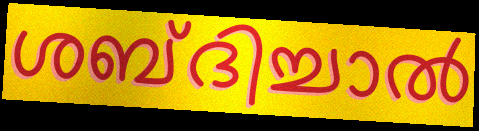
ശബ്ദിച്ചാൽ